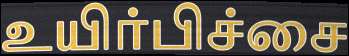
உயிர்பிச்சை